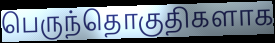
பெருந்தொகுதிகளாக